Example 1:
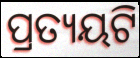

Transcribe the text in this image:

ପ୍ରତ୍ୟୟଟି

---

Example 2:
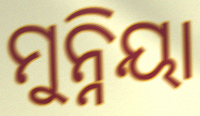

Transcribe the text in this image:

ମୁନ୍ନିୟା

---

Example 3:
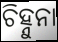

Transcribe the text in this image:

ଚିହ୍ନୁନା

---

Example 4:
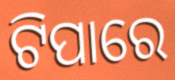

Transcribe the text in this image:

ଟିପାରେ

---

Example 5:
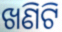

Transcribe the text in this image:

ଖଣିଟି